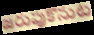
జరుపుకొనుట